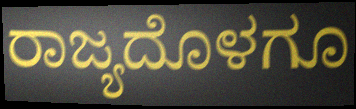
ರಾಜ್ಯದೊಳಗೂ